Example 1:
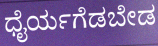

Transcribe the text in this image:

ಧೈರ್ಯಗೆಡಬೇಡ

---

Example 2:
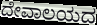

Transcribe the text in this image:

ದೇವಾಲಯದ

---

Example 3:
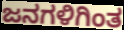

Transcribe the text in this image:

ಜನಗಳಿಗಿಂತ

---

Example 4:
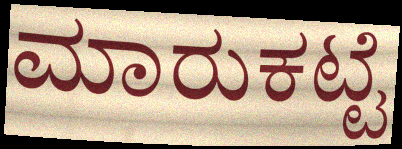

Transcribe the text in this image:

ಮಾರುಕಟ್ಟೆ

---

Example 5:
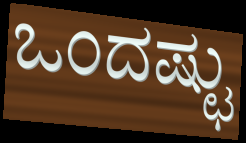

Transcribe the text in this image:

ಒಂದಷ್ಟು